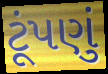
ટૂંપણું